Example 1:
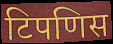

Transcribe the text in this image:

टिपणिस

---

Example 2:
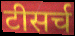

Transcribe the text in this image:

टीसर्च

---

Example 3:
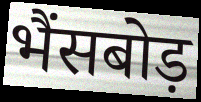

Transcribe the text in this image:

भैंसबोड़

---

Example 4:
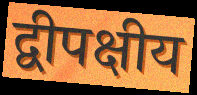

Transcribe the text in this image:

द्वीपक्षीय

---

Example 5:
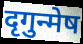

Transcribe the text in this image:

दृगुन्मेष